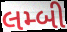
લમ્બી